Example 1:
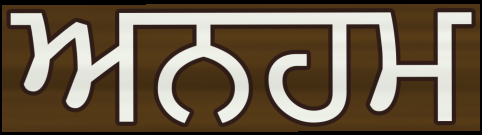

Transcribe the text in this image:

ਅਨਹਮ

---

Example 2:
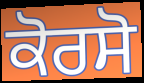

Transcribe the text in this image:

ਕੋਰਸੋ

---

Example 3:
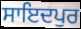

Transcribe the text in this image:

ਸਾਇਦਪੁਰ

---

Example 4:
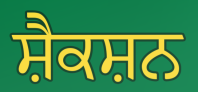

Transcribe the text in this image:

ਸ਼ੈਕਸ਼ਨ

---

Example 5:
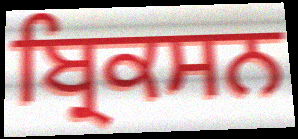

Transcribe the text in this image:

ਬ੍ਰਿਕਸਨ